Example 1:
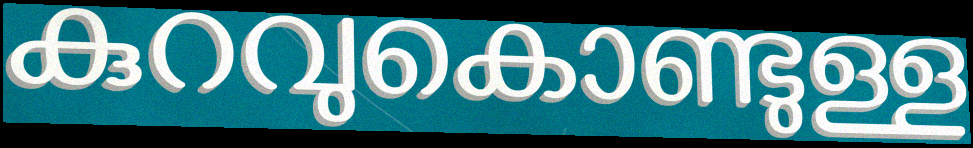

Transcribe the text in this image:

കുറവുകൊണ്ടുള്ള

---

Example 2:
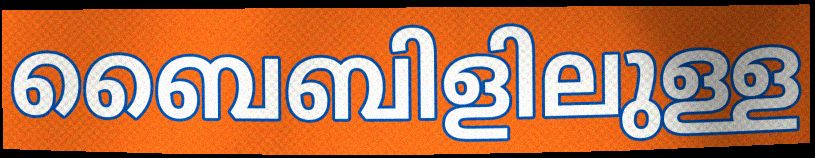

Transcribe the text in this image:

ബൈബിളിലുള്ള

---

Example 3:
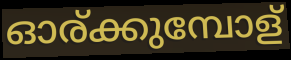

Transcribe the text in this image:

ഓര്ക്കുമ്പോള്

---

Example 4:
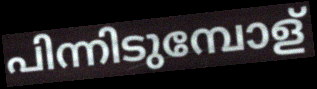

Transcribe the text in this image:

പിന്നിടുമ്പോള്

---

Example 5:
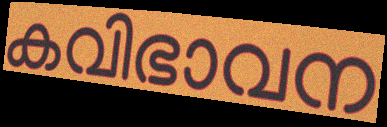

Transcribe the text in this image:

കവിഭാവന